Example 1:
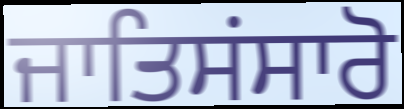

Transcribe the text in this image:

ਜਾਤਿਸਂਸਾਰੋ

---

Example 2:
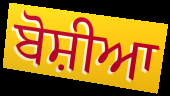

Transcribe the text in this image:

ਬੋਸ਼ੀਆ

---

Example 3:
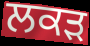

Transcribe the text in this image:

ਲਕੜ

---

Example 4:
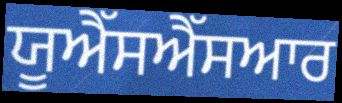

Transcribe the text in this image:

ਯੂਐੱਸਐੱਸਆਰ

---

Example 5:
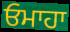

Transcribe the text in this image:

ਓਮਾਹਾ